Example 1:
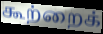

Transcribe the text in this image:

கூற்றைக்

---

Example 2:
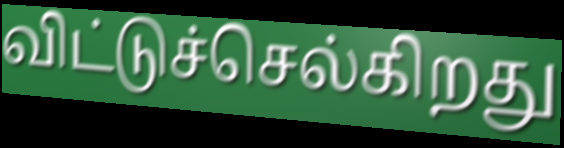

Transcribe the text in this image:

விட்டுச்செல்கிறது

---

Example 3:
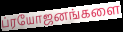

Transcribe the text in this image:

ப்ரயோஜனங்களை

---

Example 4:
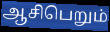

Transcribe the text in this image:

ஆசிபெறும்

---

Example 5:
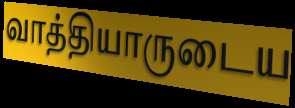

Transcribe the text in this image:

வாத்தியாருடைய